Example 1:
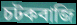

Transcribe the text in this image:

চটকবাজি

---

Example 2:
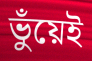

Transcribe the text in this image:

ভুঁয়েই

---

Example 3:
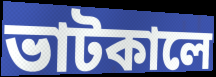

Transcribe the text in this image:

ভাটকালে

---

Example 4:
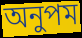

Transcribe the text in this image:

অনুপম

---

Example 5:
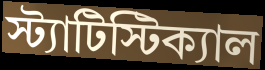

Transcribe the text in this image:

স্ট্যাটিস্টিক্যাল